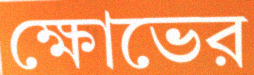
ক্ষোভের